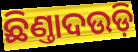
ଛିଣ୍ତାଦଉଡ଼ି